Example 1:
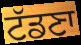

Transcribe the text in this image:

ਟੱਡਣਾ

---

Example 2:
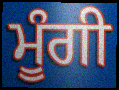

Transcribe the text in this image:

ਮੂੰਗੀ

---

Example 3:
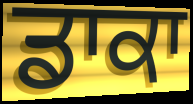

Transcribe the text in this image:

ਡਾਕਾ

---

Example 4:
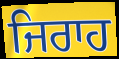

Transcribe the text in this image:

ਜਿਰਾਹ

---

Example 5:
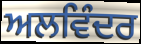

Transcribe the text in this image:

ਅਲਵਿੰਦਰ